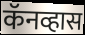
कॅनव्हास